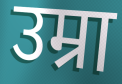
उम्रा